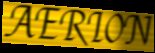
AERION